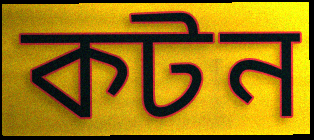
কটন